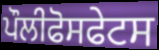
ਪੌਲੀਫੋਸਫੇਟਸ